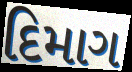
દિમાગ